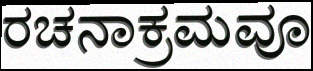
ರಚನಾಕ್ರಮವೂ